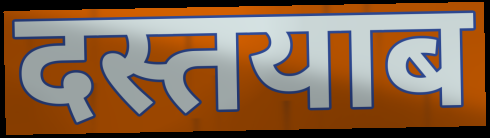
दस्तयाब